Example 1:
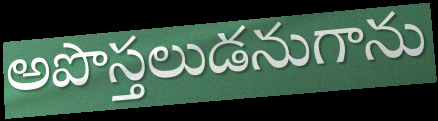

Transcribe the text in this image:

అపొస్తలుడనుగాను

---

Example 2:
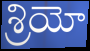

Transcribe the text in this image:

శ్రియో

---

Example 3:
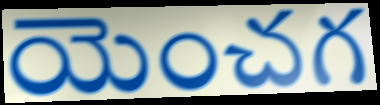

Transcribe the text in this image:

యెంచగ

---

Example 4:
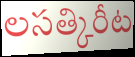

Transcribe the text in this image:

లసత్కిరీట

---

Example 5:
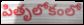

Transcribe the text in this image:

పితృలోకంలో